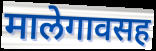
मालेगावसह